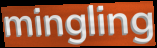
mingling